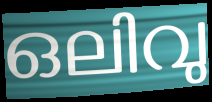
ഒലിവു